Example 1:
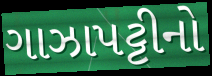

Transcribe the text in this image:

ગાઝાપટ્ટીનો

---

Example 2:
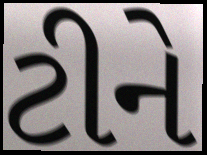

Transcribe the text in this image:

ટીને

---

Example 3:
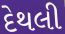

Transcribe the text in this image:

દેથલી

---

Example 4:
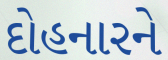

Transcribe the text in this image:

દોહનારને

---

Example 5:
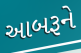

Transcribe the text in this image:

આબરૂને